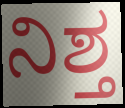
ನಿಶ್ತ